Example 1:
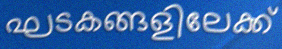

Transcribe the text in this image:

ഘടകങ്ങളിലേക്ക്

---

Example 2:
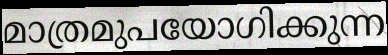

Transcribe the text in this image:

മാത്രമുപയോഗിക്കുന്ന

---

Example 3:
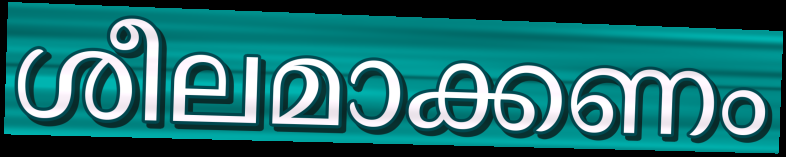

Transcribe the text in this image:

ശീലമാക്കണം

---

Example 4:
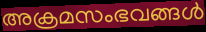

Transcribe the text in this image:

അക്രമസംഭവങ്ങൾ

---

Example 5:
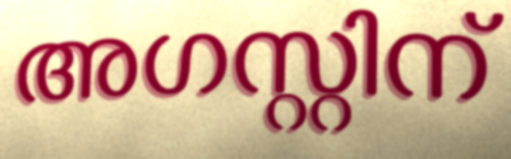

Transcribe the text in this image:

അഗസ്റ്റിന്